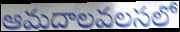
ఆమదాలవలసలో